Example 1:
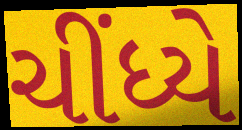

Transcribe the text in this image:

ચીંધ્યે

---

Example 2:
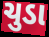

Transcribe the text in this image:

ચુડા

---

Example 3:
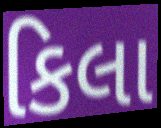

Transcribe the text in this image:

કિલા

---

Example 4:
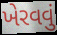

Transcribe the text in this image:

ખેરવવું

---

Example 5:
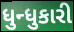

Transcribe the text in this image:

ધુન્ધુકારી